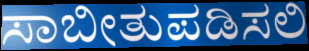
ಸಾಬೀತುಪಡಿಸಲಿ